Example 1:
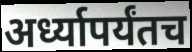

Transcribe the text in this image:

अर्ध्यापर्यंतच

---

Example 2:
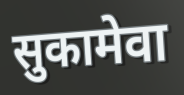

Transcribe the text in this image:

सुकामेवा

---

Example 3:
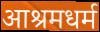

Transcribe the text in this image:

आश्रमधर्म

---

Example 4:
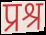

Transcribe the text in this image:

प्रश्र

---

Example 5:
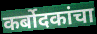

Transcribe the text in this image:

कर्बोदकांचा